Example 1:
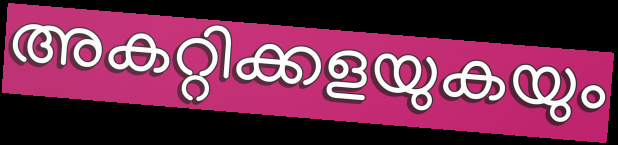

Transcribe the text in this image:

അകറ്റിക്കളയുകയും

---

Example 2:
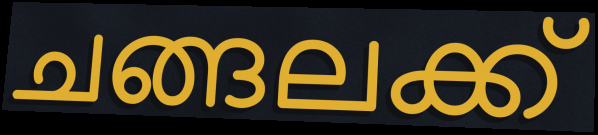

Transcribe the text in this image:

ചങ്ങലക്ക്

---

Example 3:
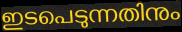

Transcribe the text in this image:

ഇടപെടുന്നതിനും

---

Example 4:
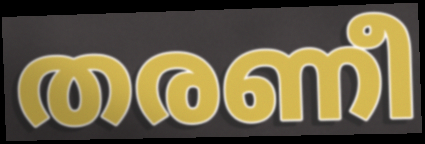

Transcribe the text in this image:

തരണീ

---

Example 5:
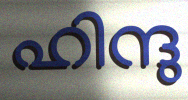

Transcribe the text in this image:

ഹിന്ദു